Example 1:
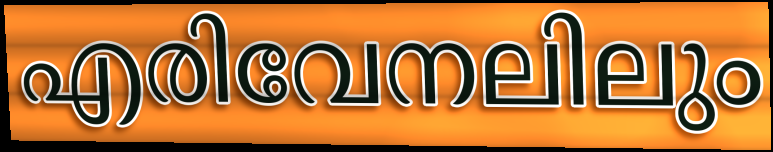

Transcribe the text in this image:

എരിവേനലിലും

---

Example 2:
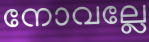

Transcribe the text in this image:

നോവല്ലേ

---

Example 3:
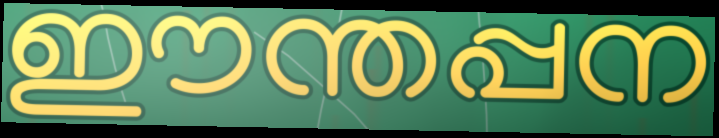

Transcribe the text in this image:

ഈന്തപ്പന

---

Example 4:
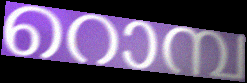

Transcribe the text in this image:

റൊമ്പ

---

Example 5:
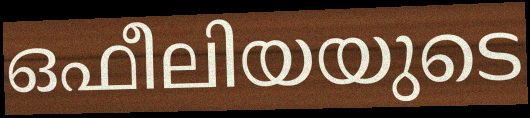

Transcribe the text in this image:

ഒഫീലിയയുടെ